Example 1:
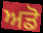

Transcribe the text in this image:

ਅਡੋ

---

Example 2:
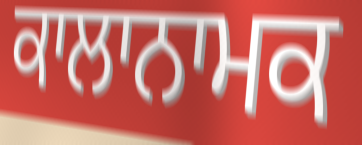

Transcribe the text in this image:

ਕਾਲਾਨਾਮਕ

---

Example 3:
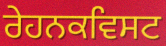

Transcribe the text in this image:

ਰੇਹਨਕਵਿਸਟ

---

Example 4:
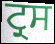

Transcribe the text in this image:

ਟ੍ਰਸ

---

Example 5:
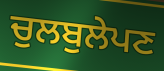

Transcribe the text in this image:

ਚੁਲਬੁਲੇਪਣ